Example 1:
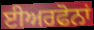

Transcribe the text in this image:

ਈਅਰਫੋਨਾਂ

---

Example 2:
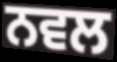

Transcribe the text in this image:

ਨਵਲ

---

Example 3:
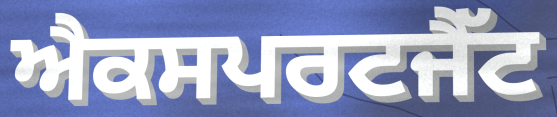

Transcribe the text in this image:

ਐਕਸਪਰਟਜੈੱਟ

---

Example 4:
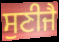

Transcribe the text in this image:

ਸੁਣੀਜੈ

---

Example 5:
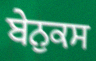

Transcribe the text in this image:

ਬੇਨੁਕਸ